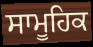
ਸਾਮੂਹਿਕ